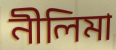
নীলিমা